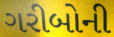
ગરીબોની